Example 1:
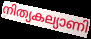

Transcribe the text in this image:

നിത്യകല്യാണി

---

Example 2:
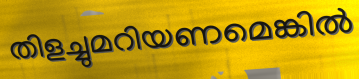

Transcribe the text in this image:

തിളച്ചുമറിയണമെങ്കിൽ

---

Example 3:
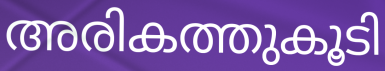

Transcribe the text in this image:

അരികത്തുകൂടി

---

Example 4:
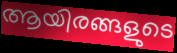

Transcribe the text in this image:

ആയിരങ്ങളുടെ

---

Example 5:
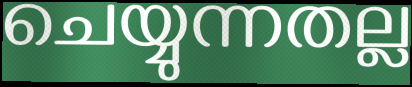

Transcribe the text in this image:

ചെയ്യുന്നതല്ല